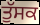
ਤੁੱਸਕ